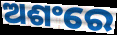
ଅଶଂରେ